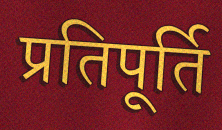
प्रतिपूर्ति